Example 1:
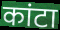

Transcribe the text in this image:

कांटा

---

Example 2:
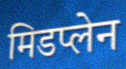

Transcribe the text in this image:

मिडप्लेन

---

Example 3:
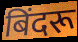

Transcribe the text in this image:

बिंदरू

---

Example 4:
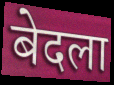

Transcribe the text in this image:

बेदला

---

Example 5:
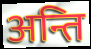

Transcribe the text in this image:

अन्ति